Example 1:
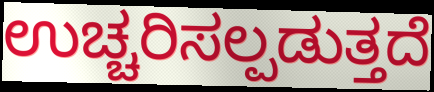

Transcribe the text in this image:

ಉಚ್ಚರಿಸಲ್ಪಡುತ್ತದೆ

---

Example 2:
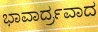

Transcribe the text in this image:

ಭಾವಾರ್ದ್ರವಾದ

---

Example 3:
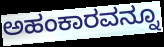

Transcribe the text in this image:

ಅಹಂಕಾರವನ್ನೂ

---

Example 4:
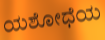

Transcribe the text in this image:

ಯಶೋಧೆಯ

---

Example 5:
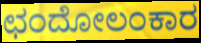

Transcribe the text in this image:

ಛಂದೋಲಂಕಾರ